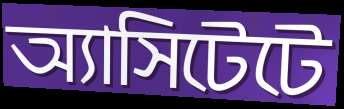
অ্যাসিটেটে